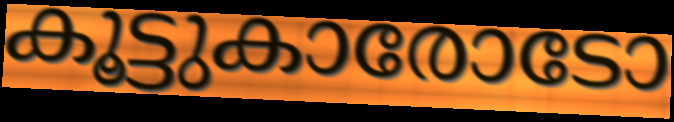
കൂട്ടുകാരോടോ